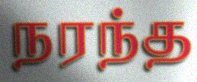
நரந்த